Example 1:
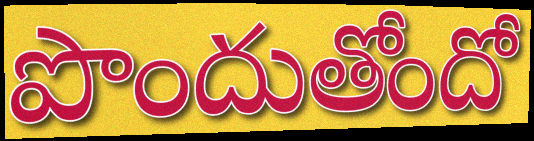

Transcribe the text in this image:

పొందుతోందో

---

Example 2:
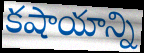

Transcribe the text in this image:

కషాయాన్ని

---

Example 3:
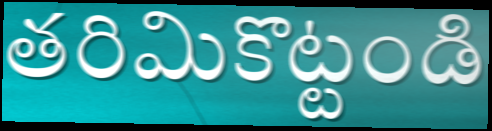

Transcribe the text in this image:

తరిమికొట్టండి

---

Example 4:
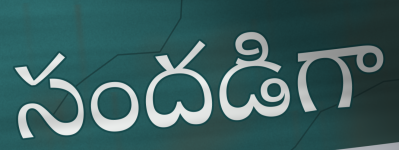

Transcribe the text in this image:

సందడిగా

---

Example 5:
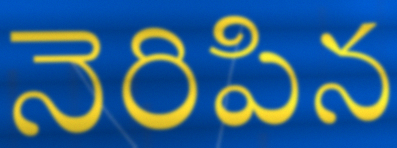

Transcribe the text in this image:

నెరిపిన